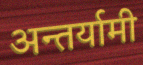
अन्तर्यामी